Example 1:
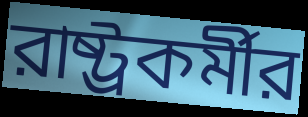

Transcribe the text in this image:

রাষ্ট্রকর্মীর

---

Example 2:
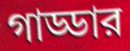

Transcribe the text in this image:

গাড্ডার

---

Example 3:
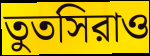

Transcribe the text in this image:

তুতসিরাও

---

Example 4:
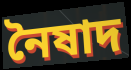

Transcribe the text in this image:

নৈষাদ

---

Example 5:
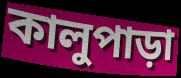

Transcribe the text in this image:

কালুপাড়া